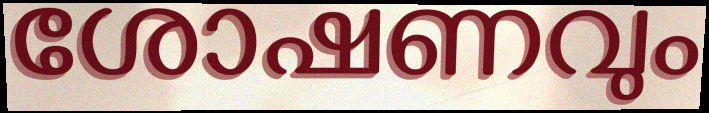
ശോഷണവും